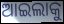
ଆଇଲାକୁ